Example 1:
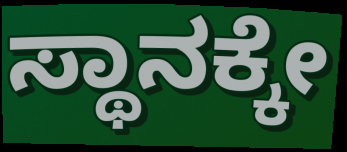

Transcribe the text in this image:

ಸ್ಥಾನಕ್ಕೇ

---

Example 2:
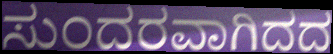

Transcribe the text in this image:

ಸುಂದರವಾಗಿದದ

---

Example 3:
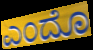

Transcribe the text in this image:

ಎಂದೊ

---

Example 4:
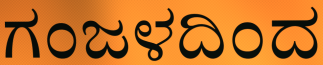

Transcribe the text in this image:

ಗಂಜಳದಿಂದ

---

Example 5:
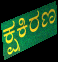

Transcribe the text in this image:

ಕ್ಷಕಿರಣ